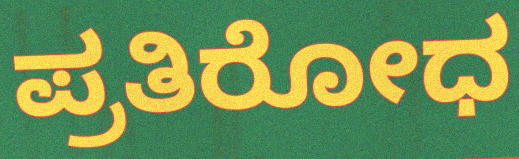
ಪ್ರತಿರೋಧ